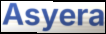
Asyera